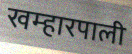
खम्हारपाली